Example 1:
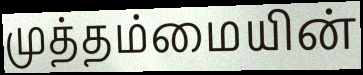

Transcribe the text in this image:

முத்தம்மையின்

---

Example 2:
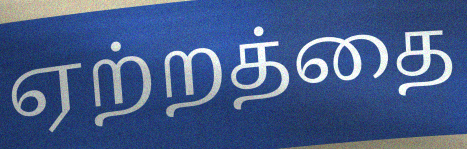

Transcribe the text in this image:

ஏற்றத்தை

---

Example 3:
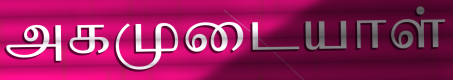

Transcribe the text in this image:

அகமுடையாள்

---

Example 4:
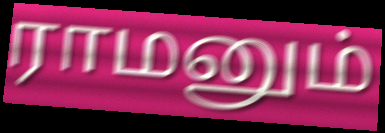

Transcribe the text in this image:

ராமனும்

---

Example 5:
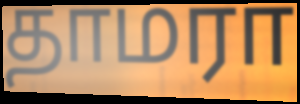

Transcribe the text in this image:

தாமரா